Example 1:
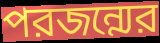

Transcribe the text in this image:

পরজন্মের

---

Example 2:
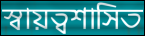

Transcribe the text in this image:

স্বায়ত্বশাসিত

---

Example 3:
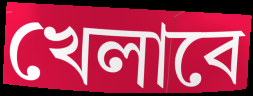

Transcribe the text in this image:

খেলাবে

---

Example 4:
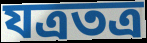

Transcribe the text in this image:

যত্রতত্র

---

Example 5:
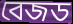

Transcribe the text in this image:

বেজড